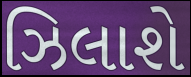
ઝિલાશે